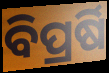
ବିପ୍ରର୍ଷି